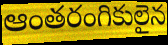
ఆంతరంగికులైన